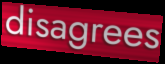
disagrees